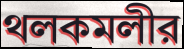
থলকমলীর